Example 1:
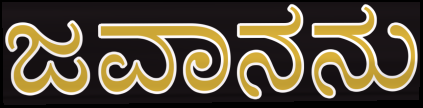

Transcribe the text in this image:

ಜವಾನನು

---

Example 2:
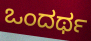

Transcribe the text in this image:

ಒಂದರ್ಥ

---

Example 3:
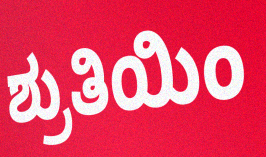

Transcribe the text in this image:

ಶ್ರುತಿಯಿಂ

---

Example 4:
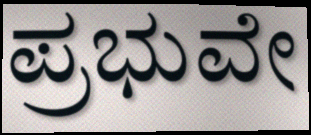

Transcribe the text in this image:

ಪ್ರಭುವೇ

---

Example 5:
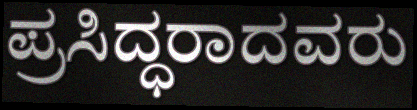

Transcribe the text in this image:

ಪ್ರಸಿದ್ಧರಾದವರು